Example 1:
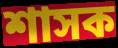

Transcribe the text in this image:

শাসক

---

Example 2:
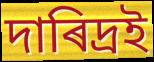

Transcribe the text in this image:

দাৰিদ্ৰই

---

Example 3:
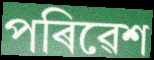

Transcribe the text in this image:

পৰিৱেশ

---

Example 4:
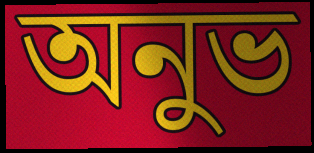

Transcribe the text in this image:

অনুভ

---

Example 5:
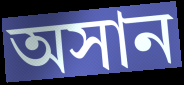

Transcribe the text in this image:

অসান